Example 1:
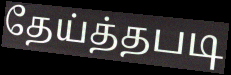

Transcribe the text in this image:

தேய்த்தபடி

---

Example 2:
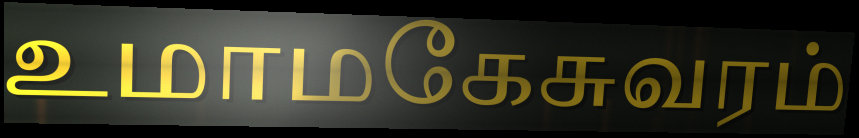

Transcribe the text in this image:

உமாமகேசுவரம்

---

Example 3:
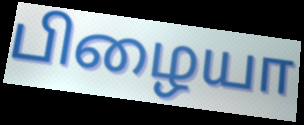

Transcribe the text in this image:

பிழையா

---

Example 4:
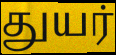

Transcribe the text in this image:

துயர்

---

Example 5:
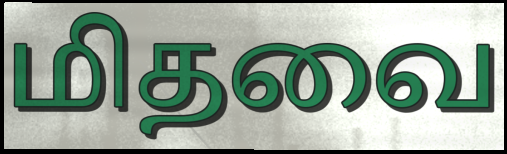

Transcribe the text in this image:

மிதவை